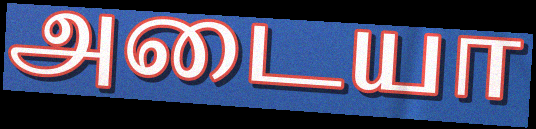
அடையா